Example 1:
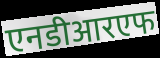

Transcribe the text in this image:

एनडीआरएफ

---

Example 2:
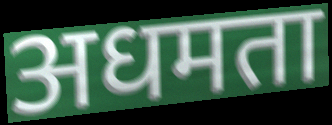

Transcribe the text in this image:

अधमता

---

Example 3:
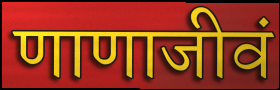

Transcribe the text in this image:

णाणाजीवं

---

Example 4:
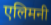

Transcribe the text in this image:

एलिमनी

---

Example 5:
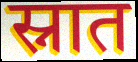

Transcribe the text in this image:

स्नात